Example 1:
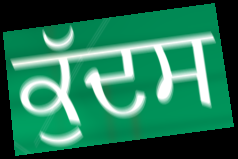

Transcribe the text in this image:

ਕੁੱਦਸ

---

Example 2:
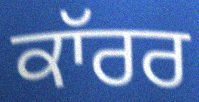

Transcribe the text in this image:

ਕਾੱਰਰ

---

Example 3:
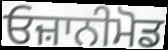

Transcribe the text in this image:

ਓਜ਼ਾਨੀਮੋਡ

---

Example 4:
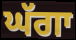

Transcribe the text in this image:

ਘੱਗਾ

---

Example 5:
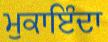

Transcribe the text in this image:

ਮੁਕਾਇੰਦਾ